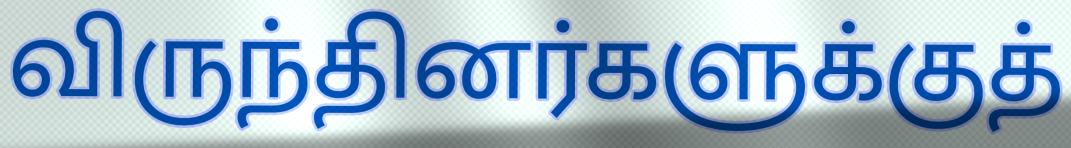
விருந்தினர்களுக்குத்